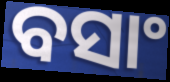
ବସାଂ